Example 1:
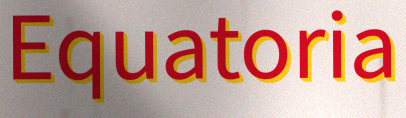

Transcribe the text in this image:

Equatoria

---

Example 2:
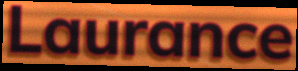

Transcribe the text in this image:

Laurance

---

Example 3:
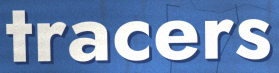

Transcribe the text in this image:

tracers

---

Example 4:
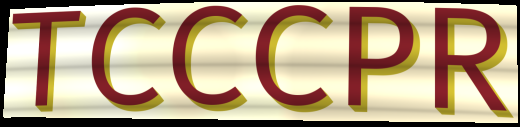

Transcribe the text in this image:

TCCCPR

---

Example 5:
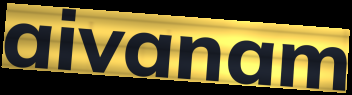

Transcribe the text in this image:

aivanam